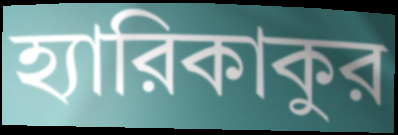
হ্যারিকাকুর